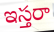
ఇస్తరా